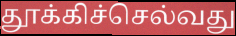
தூக்கிச்செல்வது